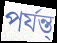
পর্যন্ত্